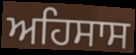
ਅਹਿਸਾਸ